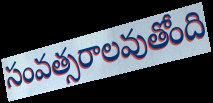
సంవత్సరాలవుతోంది